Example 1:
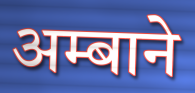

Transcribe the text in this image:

अम्बाने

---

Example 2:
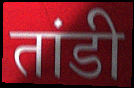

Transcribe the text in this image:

तांडी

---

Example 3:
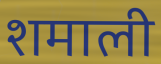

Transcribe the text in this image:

शमाली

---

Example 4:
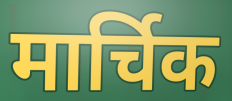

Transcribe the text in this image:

मार्चिक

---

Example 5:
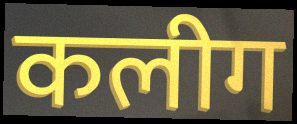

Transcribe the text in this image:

कलीग